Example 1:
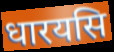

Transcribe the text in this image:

धारयसि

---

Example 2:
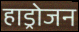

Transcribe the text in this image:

हाड्रोजन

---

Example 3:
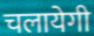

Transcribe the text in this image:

चलायेगी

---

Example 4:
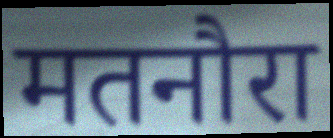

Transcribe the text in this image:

मतनौरा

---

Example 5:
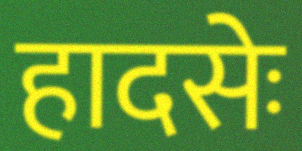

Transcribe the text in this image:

हादसेः